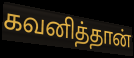
கவனித்தான்